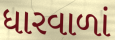
ધારવાળાં